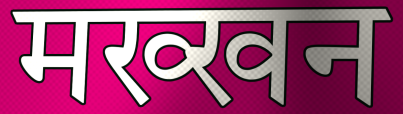
मख्खन